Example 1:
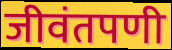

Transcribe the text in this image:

जीवंतपणी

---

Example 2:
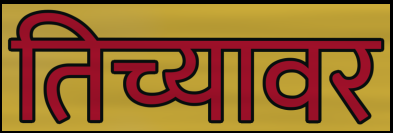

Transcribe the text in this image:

तिच्यावर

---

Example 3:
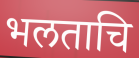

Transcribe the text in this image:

भलताचि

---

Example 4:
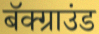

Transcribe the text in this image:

बॅक्ग्राउंड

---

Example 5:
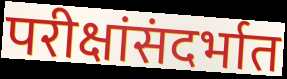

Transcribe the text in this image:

परीक्षांसंदर्भात